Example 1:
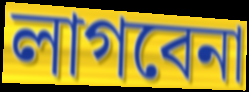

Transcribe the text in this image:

লাগবেনা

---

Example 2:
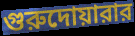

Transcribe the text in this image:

গুরুদোয়ারার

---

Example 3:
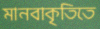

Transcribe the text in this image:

মানবাকৃতিতে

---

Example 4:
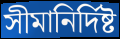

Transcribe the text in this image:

সীমানির্দিষ্ট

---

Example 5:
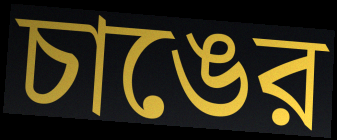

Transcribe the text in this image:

চাঙের